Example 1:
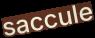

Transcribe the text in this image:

saccule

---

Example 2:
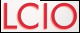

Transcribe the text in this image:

LCIO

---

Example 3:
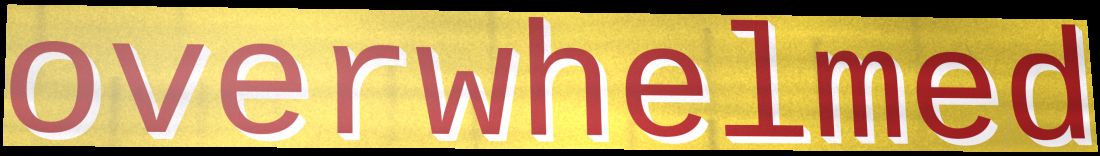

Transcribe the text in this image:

overwhelmed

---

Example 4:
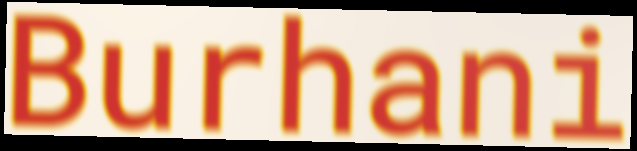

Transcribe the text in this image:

Burhani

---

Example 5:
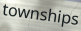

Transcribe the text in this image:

townships